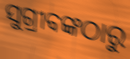
ସୁଗ୍ରୀବଙ୍କଠାରୁ